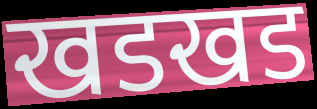
खडखड